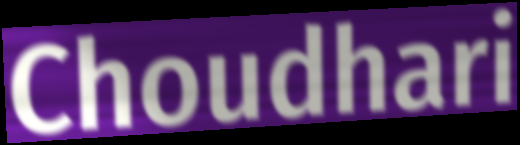
Choudhari